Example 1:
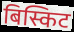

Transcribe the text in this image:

बिस्किट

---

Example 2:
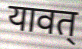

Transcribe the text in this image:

यावत्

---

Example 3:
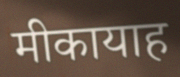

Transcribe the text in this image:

मीकायाह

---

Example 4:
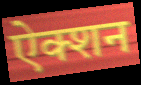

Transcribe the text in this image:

ऐक्शन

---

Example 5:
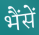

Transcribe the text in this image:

भैंसें